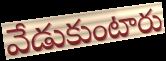
వేడుకుంటారు